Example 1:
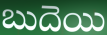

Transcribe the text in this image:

బుదెయి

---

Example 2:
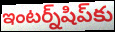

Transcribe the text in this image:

ఇంటర్న్‌షిప్‌కు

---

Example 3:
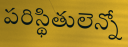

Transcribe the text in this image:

పరిస్థితులెన్నో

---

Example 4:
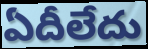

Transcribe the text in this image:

ఏదీలేదు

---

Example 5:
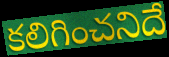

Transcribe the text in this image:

కలిగించనిదే